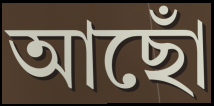
আছোঁ